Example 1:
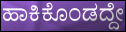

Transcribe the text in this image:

ಹಾಕಿಕೊಂಡದ್ದೇ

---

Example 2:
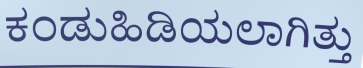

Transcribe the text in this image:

ಕಂಡುಹಿಡಿಯಲಾಗಿತ್ತು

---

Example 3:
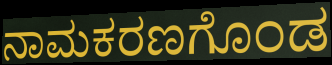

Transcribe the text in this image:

ನಾಮಕರಣಗೊಂಡ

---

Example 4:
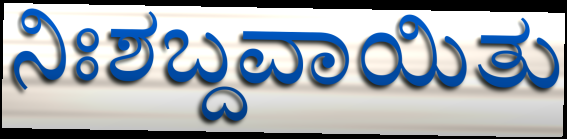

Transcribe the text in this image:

ನಿಃಶಬ್ದವಾಯಿತು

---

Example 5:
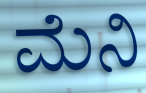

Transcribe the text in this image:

ಮೆನಿ